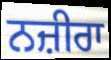
ਨਜ਼ੀਰਾ